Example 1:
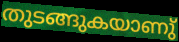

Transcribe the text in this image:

തുടങ്ങുകയാണു്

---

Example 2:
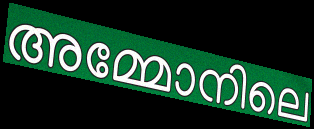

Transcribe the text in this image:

അമ്മോനിലെ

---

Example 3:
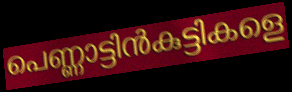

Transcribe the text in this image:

പെണ്ണാട്ടിൻകുട്ടികളെ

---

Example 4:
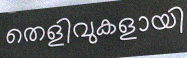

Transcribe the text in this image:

തെളിവുകളായി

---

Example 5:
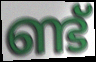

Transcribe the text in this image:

ണ്ട്